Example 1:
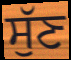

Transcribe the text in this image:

ਸੁੱਣ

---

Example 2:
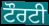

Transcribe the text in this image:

ਟੌਰਟੀ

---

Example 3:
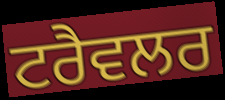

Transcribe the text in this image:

ਟਰੈਵਲਰ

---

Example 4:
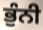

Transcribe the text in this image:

ਭੁੰਨੀ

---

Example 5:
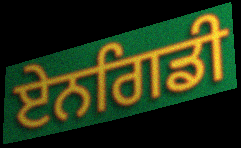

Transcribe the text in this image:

ਏਨਗਿਡੀ